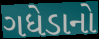
ગધેડાનો